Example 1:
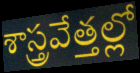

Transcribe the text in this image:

శాస్త్రవేత్తల్లో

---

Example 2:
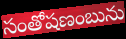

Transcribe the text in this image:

సంతోషణంబును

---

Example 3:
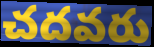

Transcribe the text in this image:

చదవరు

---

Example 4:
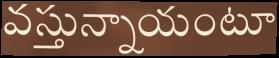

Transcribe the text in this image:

వస్తున్నాయంటూ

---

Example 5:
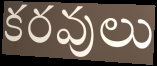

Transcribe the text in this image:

కరవులు